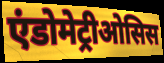
एंडोमेट्रीओसिस